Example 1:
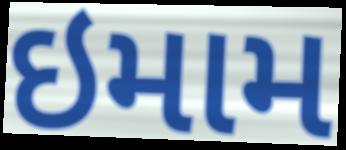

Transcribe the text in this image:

ઇમામ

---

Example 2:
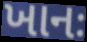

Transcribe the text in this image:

ખાનઃ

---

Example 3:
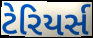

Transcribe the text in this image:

ટેરિયર્સ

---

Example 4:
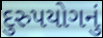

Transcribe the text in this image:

દુરુપયોગનું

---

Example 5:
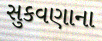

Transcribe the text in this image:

સુકવણાના